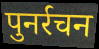
पुनर्रचन